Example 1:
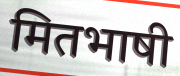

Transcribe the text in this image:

मितभाषी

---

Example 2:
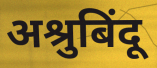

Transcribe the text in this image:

अश्रुबिंदू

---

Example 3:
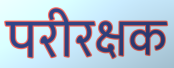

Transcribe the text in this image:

परीरक्षक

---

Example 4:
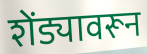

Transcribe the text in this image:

शेंड्यावरून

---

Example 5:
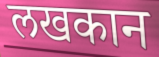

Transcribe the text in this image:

लखकान